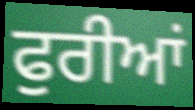
ਫੁਰੀਆਂ